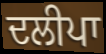
ਦਲੀਪਾ